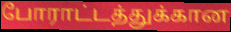
போராட்டத்துக்கான